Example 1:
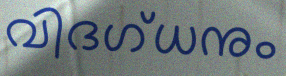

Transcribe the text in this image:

വിദഗ്ധനും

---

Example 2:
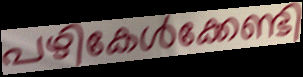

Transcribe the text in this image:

പഴികേൾക്കേണ്ടി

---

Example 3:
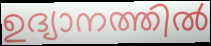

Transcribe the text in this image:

ഉദ്യാനത്തിൽ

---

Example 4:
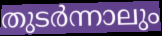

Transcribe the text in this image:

തുടർന്നാലും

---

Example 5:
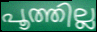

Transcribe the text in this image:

പൂത്തില്ല